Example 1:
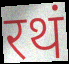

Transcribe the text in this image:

रथं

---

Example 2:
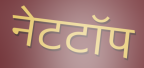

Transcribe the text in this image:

नेटटॉप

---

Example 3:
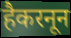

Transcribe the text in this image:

हैकरनून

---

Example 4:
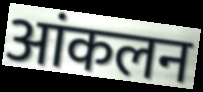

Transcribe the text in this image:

आंकलन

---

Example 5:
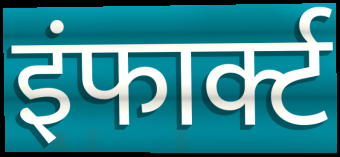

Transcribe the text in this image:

इंफार्क्ट